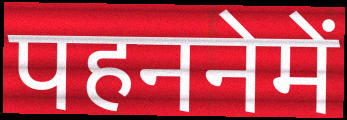
पहननेमें